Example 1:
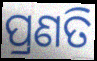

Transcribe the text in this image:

ପ୍ରଣତି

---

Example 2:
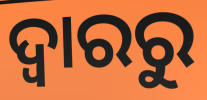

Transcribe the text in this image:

ଦ୍ଵାରରୁ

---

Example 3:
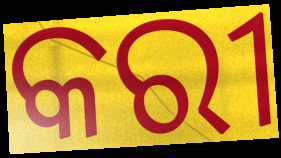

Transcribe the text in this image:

କରୀ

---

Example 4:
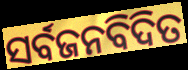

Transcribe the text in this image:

ସର୍ବଜନବିଦିତ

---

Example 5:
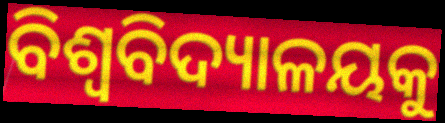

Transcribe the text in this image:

ବିଶ୍ବବିଦ୍ୟାଳୟକୁ